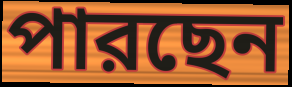
পারছেন